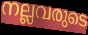
നല്ലവരുടെ